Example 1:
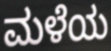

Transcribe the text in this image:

ಮಳೆಯ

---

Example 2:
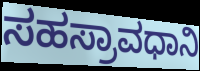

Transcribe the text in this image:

ಸಹಸ್ರಾವಧಾನಿ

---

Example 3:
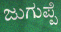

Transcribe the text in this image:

ಜುಗುಪ್ಪೆ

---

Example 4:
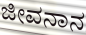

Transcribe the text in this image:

ಜೀವನಾನ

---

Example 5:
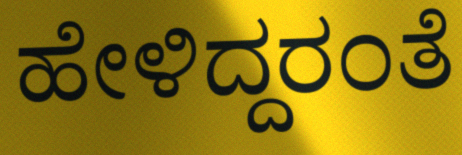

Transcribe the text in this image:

ಹೇಳಿದ್ದರಂತೆ